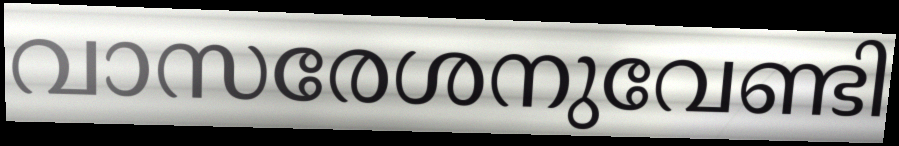
വാസരേശനുവേണ്ടി